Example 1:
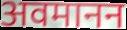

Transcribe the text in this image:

अवमानन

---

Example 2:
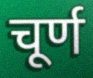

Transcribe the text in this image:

चूर्ण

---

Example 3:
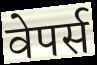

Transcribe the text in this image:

वेपर्स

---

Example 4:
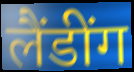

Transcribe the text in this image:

लैंडींग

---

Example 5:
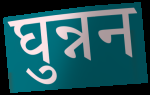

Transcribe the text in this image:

घुन्नन